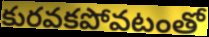
కురవకపోవటంతో